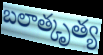
బలాత్కృత్య